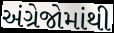
અંગ્રેજોમાંથી